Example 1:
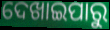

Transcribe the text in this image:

ଦେଖାଇପାରୁ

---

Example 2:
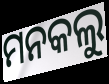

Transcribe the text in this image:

ମନକଲୁ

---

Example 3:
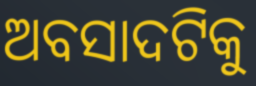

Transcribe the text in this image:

ଅବସାଦଟିକୁ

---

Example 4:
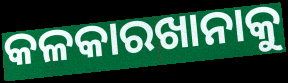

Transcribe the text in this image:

କଳକାରଖାନାକୁ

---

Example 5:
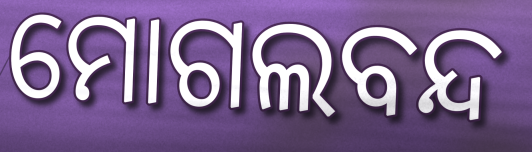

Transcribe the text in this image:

ମୋଗଲବନ୍ଦ